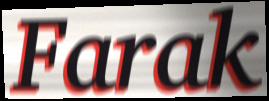
Farak